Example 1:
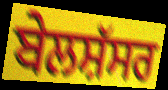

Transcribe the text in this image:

ਬੇਲਸ਼ੱਸਰ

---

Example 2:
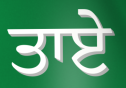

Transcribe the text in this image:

ਤਾਏ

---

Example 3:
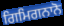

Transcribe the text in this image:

ਗਿਮਿਗਨਾਨੋ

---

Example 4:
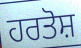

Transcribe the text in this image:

ਹਰਤੋਸ਼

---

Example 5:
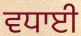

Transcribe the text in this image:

ਵਧਾਈ